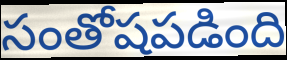
సంతోషపడింది